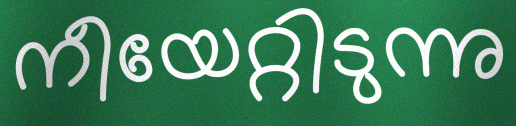
നീയേറ്റിടുന്നു